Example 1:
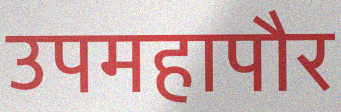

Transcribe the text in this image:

उपमहापौर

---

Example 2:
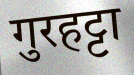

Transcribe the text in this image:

गुरहट्टा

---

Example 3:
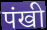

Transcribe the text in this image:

पंखी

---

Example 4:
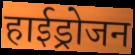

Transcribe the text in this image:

हाईड्रोजन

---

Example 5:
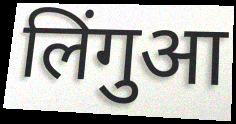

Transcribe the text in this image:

लिंगुआ